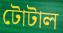
টোটাল